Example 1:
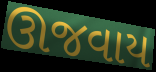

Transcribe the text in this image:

ઊજવાય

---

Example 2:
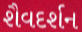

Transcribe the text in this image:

શૈવદર્શન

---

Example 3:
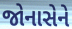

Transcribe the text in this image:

જોનાસેને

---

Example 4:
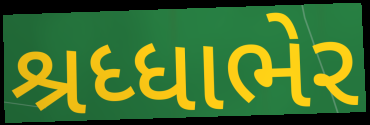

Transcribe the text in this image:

શ્રધ્ધાભેર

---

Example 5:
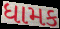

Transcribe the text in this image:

ધામક